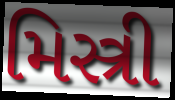
મિસ્ત્રી